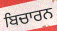
ਬਿਚਾਰਨ